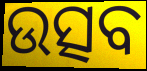
ଉତ୍ସବ